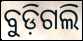
ବୁଡ଼ିଗଲି